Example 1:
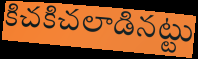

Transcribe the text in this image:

కిచకిచలాడినట్టు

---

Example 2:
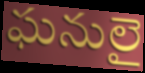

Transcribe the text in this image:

ఘనులై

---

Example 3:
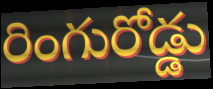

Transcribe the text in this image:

రింగురోడ్డు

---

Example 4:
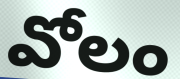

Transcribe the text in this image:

వోలం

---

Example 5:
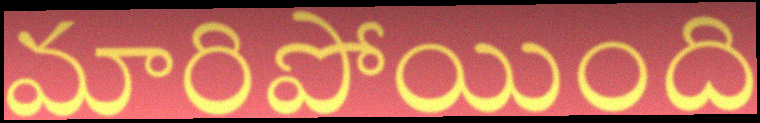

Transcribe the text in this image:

మారిపోయింది